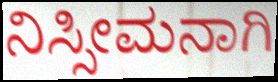
ನಿಸ್ಸೀಮನಾಗಿ